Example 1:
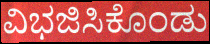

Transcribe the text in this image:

ವಿಭಜಿಸಿಕೊಂಡು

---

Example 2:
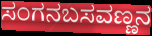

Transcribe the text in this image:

ಸಂಗನಬಸವಣ್ಣನ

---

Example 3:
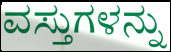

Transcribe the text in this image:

ವಸ್ತುಗಳನ್ನು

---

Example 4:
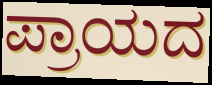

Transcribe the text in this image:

ಪ್ರಾಯದ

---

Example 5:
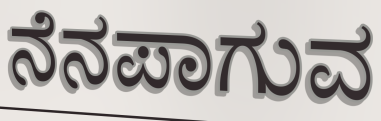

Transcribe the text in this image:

ನೆನಪಾಗುವ